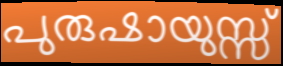
പുരുഷായുസ്സ്